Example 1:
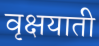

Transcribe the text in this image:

वृक्षयाती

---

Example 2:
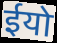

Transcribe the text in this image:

ईयो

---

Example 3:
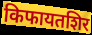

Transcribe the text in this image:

किफायतशिर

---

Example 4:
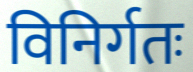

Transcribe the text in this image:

विनिर्गतः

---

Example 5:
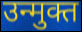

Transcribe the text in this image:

उन्मुक्त